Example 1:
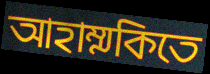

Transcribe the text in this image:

আহাম্মকিতে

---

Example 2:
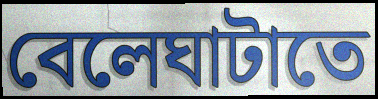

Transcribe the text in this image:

বেলেঘাটাতে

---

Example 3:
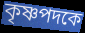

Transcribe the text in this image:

কৃষ্ণপদকে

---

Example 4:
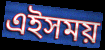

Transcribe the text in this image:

এইসময়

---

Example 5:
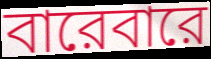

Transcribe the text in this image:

বারেবারে